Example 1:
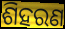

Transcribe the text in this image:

ଶିହରଣ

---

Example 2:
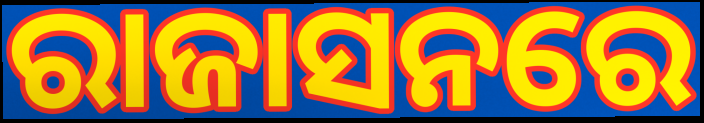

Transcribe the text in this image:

ରାଜାସନରେ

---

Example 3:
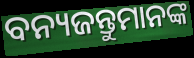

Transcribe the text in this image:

ବନ୍ୟଜନ୍ତୁମାନଙ୍କ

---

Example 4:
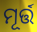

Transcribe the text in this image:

ମୂର୍ତ୍ତ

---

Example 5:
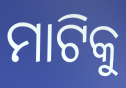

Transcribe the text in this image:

ମାଟିକୁ